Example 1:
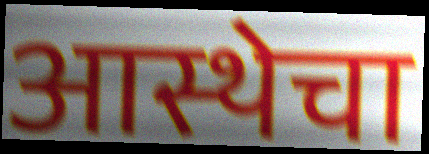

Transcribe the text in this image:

आस्थेचा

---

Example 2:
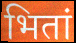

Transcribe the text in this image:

भितां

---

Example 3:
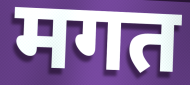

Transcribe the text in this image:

मगत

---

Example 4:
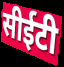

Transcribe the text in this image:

सीईटी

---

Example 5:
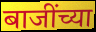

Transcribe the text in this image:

बाजींच्या